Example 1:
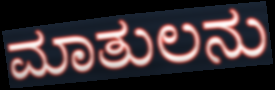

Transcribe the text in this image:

ಮಾತುಲನು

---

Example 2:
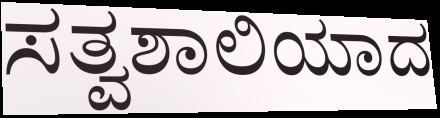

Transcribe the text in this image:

ಸತ್ವಶಾಲಿಯಾದ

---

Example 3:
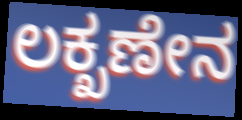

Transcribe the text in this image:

ಲಕ್ಖಣೇನ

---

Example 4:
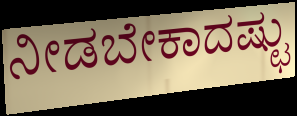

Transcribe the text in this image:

ನೀಡಬೇಕಾದಷ್ಟು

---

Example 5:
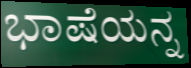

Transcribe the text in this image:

ಭಾಷೆಯನ್ನ